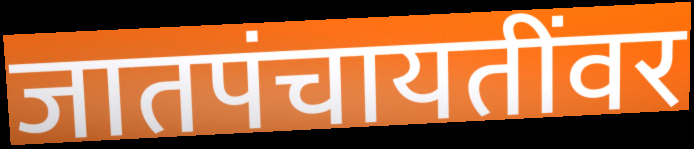
जातपंचायतींवर